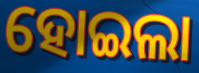
ହୋଇଲା